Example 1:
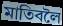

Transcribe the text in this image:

মাতিবলৈ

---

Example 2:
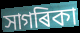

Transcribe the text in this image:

সাগৰিকা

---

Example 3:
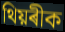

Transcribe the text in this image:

থিয়ৰীক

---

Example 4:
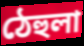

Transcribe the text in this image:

ঠেহুলা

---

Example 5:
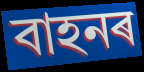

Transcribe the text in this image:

বাহনৰ